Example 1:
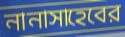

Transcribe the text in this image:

নানাসাহেবের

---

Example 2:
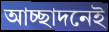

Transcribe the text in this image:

আচ্ছাদনেই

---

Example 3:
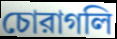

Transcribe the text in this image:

চোরাগলি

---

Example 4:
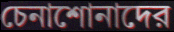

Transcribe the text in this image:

চেনাশোনাদের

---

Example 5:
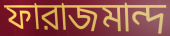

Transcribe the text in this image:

ফারাজমান্দ